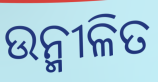
ଉନ୍ମୀଳିତ